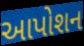
આપોશન